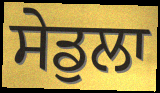
ਸੇਡੁਲਾ